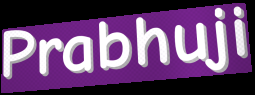
Prabhuji